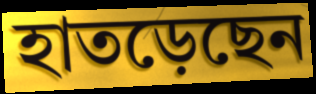
হাতড়েছেন